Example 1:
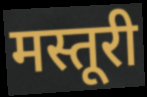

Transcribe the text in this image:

मस्तूरी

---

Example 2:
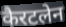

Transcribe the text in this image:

कैरटलेन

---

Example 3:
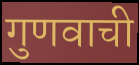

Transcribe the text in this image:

गुणवाची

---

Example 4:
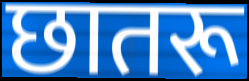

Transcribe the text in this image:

छातरू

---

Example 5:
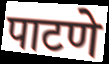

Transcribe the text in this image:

पाटणे